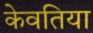
केवतिया